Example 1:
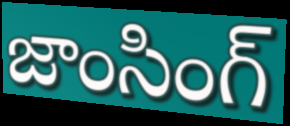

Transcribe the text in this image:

జాంసింగ్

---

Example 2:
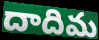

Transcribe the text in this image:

దాదిమ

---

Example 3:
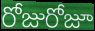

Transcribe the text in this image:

రోజురోజూ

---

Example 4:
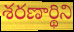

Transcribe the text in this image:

శరణార్థిని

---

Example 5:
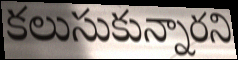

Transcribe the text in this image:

కలుసుకున్నారని